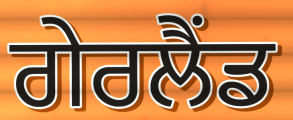
ਗੇਰਲੈਂਡ